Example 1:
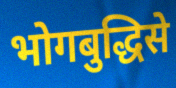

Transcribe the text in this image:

भोगबुद्धिसे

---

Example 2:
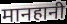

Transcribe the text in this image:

मानहानी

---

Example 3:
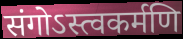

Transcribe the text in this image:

संगोऽस्त्वकर्मणि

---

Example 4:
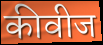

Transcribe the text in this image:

कीवीज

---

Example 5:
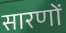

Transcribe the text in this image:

सारणों